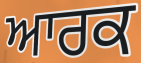
ਆਰਕ